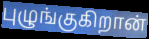
புழுங்குகிறான்